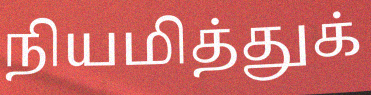
நியமித்துக்